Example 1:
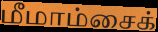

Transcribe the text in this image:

மீமாம்சைக்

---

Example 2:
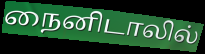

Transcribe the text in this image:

நைனிடாலில்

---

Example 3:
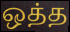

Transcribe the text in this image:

ஒத்த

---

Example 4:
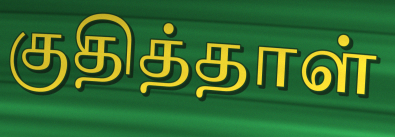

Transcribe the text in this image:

குதித்தாள்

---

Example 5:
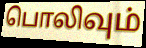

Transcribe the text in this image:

பொலிவும்